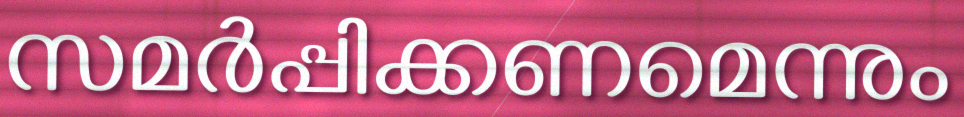
സമർപ്പിക്കണമെന്നും